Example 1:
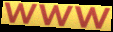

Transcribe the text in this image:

www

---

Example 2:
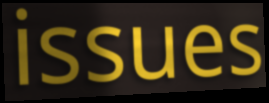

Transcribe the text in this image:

issues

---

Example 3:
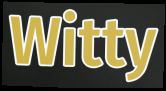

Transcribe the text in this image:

Witty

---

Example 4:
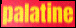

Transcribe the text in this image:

palatine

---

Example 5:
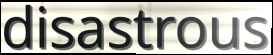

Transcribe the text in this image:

disastrous